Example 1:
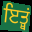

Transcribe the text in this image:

ਇਤ੍ਥਂ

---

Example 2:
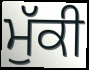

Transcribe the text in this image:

ਮੁੱਕੀ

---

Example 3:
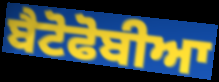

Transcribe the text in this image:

ਬੈਟੋਫੋਬੀਆ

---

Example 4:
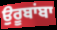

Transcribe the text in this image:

ਉਰੂਬਾਂਬਾ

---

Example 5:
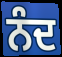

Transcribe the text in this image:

ਨੰਦ